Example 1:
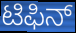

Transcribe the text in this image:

ಟಿಫಿನ್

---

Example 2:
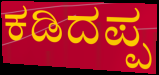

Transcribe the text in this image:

ಕಡಿದಪ್ಪ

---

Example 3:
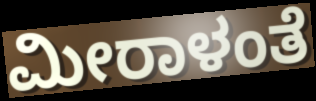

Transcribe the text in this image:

ಮೀರಾಳಂತೆ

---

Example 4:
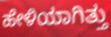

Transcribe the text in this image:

ಹೇಳಿಯಾಗಿತ್ತು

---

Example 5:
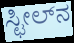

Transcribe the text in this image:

ಸ್ಟೀಲ್‌ನ